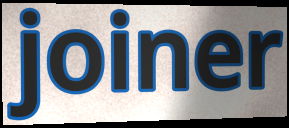
joiner